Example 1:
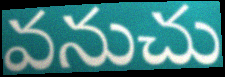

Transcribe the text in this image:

వనుచు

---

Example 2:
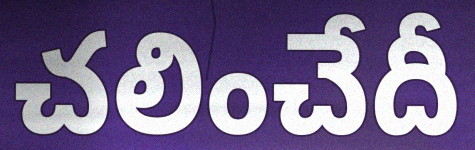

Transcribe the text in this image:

చలించేదీ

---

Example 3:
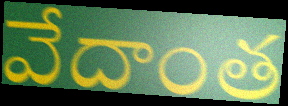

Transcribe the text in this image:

వేదాంత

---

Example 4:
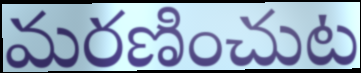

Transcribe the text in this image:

మరణించుట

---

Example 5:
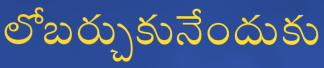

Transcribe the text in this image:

లోబర్చుకునేందుకు